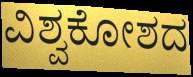
ವಿಶ್ವಕೋಶದ